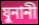
যুনানী